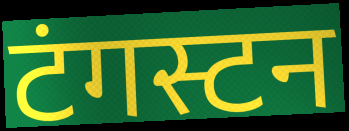
टंगस्टन